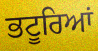
ਭਟੂਰਿਆਂ